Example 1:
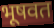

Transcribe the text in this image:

भूषवत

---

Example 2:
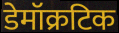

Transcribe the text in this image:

डेमॉक्रटिक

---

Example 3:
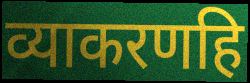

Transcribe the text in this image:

व्याकरणहि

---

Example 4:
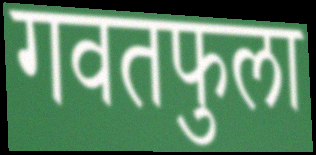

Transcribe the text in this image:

गवतफुला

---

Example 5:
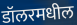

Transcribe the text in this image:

डॉलरमधील